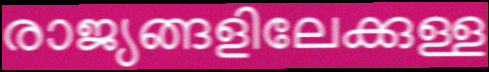
രാജ്യങ്ങളിലേക്കുള്ള